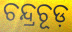
ଚନ୍ଦ୍ରଚୂଡ଼